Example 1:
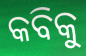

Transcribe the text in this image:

କବିକୁ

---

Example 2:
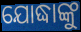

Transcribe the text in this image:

ଯୋଦ୍ଧାଙ୍କୁ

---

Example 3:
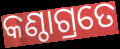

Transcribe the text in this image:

କଣ୍ଠାଗ୍ରତେ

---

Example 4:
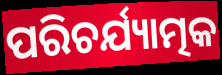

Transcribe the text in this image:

ପରିଚର୍ଯ୍ୟାତ୍ମକ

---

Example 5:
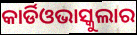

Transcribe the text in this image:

କାର୍ଡିଓଭାସ୍କୁଲାର